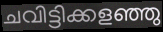
ചവിട്ടിക്കളഞ്ഞു